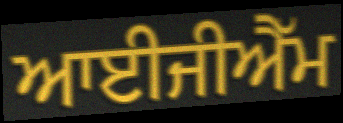
ਆਈਜੀਐੱਮ